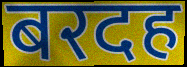
बरदह